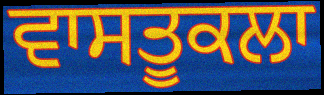
ਵਾਸਤੂਕਲਾ